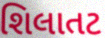
શિલાતટ